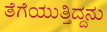
ತೆಗೆಯುತ್ತಿದ್ದನು